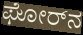
ಘೋರ್‌ನ